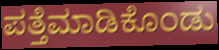
ಪತ್ತೆಮಾಡಿಕೊಂಡು